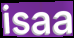
isaa